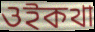
ওইকথা